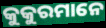
କୁକୁରମାନେ